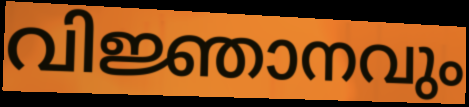
വിജ്ഞാനവും